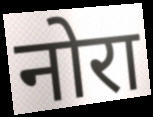
नोरा